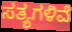
ಸತ್ಯಗಳಿವೆ